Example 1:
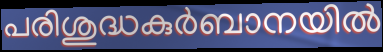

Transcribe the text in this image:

പരിശുദ്ധകുർബാനയിൽ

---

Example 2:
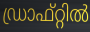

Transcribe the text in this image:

ഡ്രാഫ്റ്റിൽ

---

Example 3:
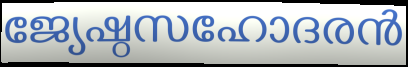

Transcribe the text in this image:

ജ്യേഷ്ഠസഹോദരൻ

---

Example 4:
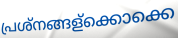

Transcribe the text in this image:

പ്രശ്നങ്ങള്ക്കൊക്കെ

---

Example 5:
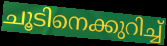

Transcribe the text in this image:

ചൂടിനെക്കുറിച്ച്